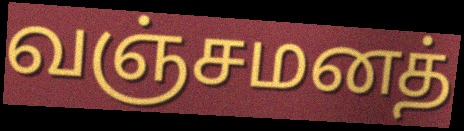
வஞ்சமனத்